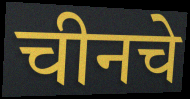
चीनचे